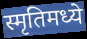
स्मृतिमध्ये